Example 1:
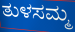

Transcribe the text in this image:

ತುಳಸಮ್ಮ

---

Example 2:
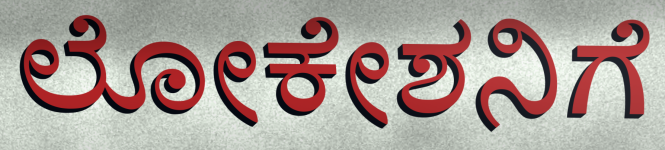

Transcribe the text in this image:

ಲೋಕೇಶನಿಗೆ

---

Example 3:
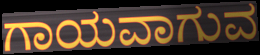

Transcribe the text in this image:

ಗಾಯವಾಗುವ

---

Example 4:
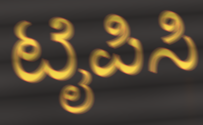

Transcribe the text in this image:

ಟೈಪಿಸಿ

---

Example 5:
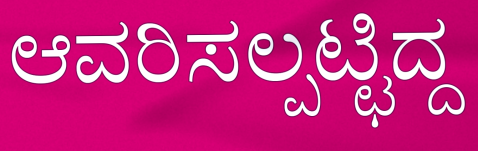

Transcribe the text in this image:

ಆವರಿಸಲ್ಪಟ್ಟಿದ್ದ